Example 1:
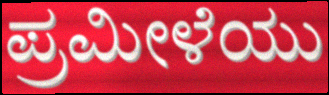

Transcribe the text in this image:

ಪ್ರಮೀಳೆಯು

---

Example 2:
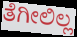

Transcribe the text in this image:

ತೆಗೀಲಿಲ್ಲ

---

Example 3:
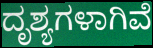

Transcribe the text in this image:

ದೃಶ್ಯಗಳಾಗಿವೆ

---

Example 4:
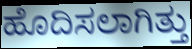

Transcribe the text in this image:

ಹೊದಿಸಲಾಗಿತ್ತು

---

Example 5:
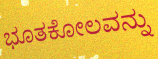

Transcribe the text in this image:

ಭೂತಕೋಲವನ್ನು